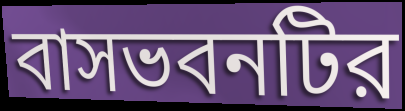
বাসভবনটির